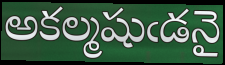
అకల్మషుఁడనై